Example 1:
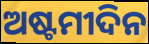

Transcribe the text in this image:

ଅଷ୍ଟମୀଦିନ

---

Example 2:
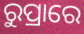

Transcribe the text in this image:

ରୁପ୍ରାରେ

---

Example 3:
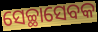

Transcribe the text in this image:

ସେଚ୍ଛାସେବକ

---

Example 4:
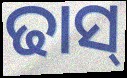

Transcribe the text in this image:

ଢାସ୍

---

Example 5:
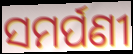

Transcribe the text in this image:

ସମର୍ପଣୀ